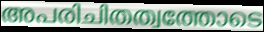
അപരിചിതത്വത്തോടെ